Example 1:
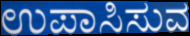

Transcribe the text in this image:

ಉಪಾಸಿಸುವ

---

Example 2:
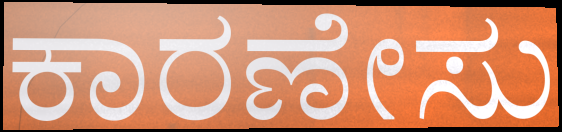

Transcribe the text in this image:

ಕಾರಣೇಸು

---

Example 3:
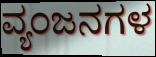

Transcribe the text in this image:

ವ್ಯಂಜನಗಳ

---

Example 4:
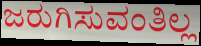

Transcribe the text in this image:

ಜರುಗಿಸುವಂತಿಲ್ಲ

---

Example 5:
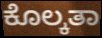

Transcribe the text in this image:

ಕೊಲ್ಕತಾ